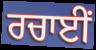
ਰਚਾਈਂ